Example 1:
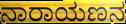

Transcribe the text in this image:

ನಾರಾಯಣನ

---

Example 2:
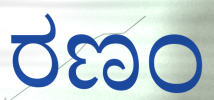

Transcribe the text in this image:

ರಣಂ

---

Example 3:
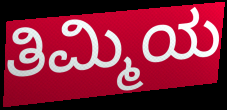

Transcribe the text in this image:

ತಿಮ್ಮಿಯ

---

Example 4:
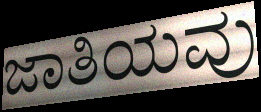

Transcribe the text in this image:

ಜಾತಿಯವು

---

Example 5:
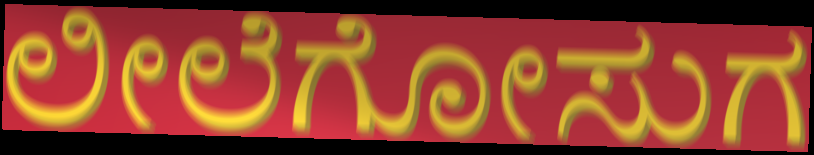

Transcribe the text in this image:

ಲೀಲೆಗೋಸುಗ